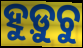
ହୁଡ଼ୁଚୁ